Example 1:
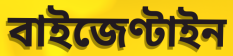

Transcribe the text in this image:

বাইজেণ্টাইন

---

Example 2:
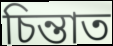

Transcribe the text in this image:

চিন্তাত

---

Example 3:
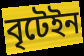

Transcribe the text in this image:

বৃটেইন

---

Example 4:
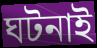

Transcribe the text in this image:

ঘটনাই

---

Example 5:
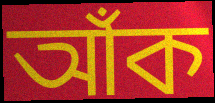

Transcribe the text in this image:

আঁক